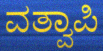
ವತ್ವಾಪಿ